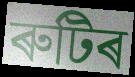
ৰুটিৰ